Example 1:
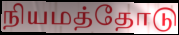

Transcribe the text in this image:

நியமத்தோடு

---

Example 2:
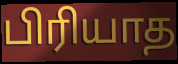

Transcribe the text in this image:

பிரியாத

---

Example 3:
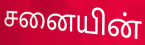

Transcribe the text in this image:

சனையின்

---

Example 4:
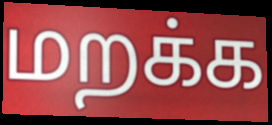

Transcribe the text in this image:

மறக்க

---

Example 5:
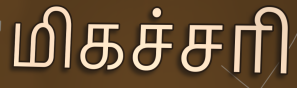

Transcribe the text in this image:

மிகச்சரி